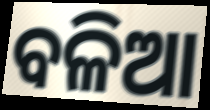
ବଳିଆ